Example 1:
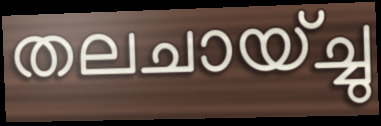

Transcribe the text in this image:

തലചായ്ച്ചു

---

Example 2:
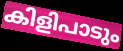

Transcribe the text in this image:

കിളിപാടും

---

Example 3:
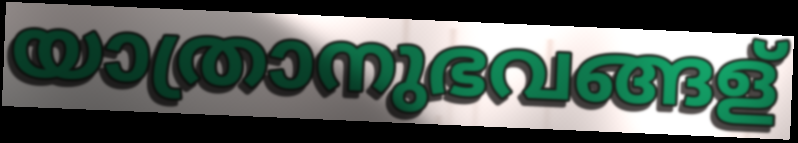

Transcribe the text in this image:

യാത്രാനുഭവങ്ങള്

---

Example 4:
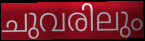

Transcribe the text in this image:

ചുവരിലും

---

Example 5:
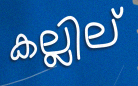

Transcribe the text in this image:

കല്ലില്